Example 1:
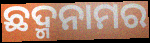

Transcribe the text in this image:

ଛଦ୍ମନାମର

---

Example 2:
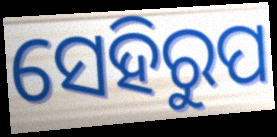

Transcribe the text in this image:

ସେହିରୁପ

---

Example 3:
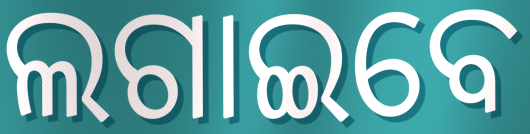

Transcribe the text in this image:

ଲଗାଇବେ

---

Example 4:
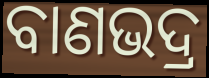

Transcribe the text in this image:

ବାଣଭଦ୍ର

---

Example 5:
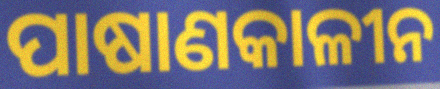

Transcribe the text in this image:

ପାଷାଣକାଳୀନ